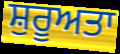
ਸ਼ੁਰੂਅਤਾ